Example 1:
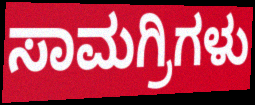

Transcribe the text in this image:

ಸಾಮಗ್ರಿಗಳು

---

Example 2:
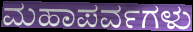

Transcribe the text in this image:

ಮಹಾಪರ್ವಗಳು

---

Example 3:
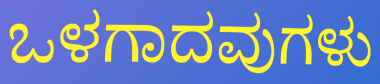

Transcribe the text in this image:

ಒಳಗಾದವುಗಳು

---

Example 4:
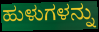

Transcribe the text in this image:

ಹುಳುಗಳನ್ನು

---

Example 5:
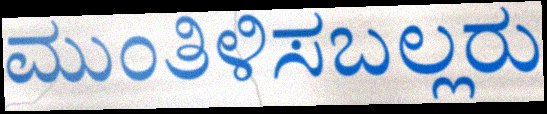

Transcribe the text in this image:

ಮುಂತಿಳಿಸಬಲ್ಲರು